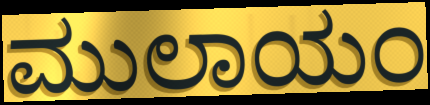
ಮುಲಾಯಂ